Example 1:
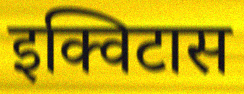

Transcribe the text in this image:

इक्विटास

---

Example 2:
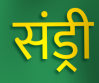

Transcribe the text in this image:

संड्री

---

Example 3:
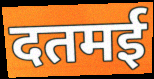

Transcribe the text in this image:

दतमई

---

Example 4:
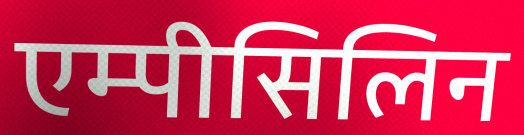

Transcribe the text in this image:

एम्पीसिलिन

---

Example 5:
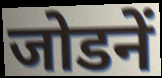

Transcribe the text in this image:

जोडनें